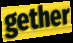
gether